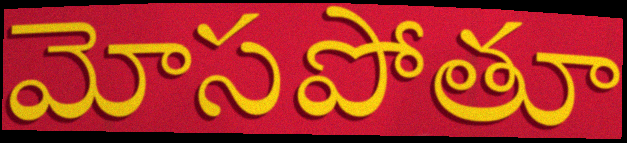
మోసపోతూ